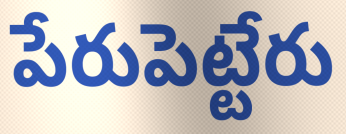
పేరుపెట్టేరు